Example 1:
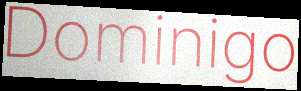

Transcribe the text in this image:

Dominigo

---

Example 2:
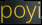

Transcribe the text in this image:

poyi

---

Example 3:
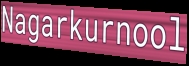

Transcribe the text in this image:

Nagarkurnool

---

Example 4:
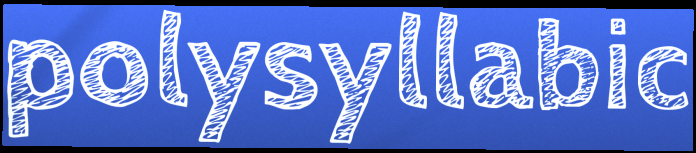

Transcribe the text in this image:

polysyllabic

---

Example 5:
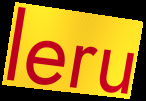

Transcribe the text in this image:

leru